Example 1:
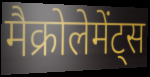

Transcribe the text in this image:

मैक्रोलेमेंट्स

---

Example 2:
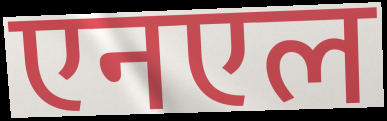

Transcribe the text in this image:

एनएल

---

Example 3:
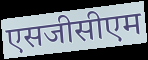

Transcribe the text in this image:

एसजीसीएम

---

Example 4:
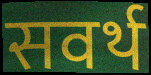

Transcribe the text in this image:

सवर्थ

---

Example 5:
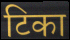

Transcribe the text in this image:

टिका